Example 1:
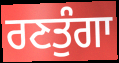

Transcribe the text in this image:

ਰਣਤੁੰਗਾ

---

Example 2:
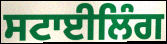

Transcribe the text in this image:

ਸਟਾਈਲਿੰਗ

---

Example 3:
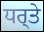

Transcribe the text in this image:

ਧਰ੍ਤੇ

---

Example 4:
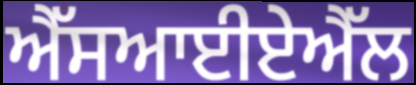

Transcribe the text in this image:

ਐੱਸਆਈਏਐੱਲ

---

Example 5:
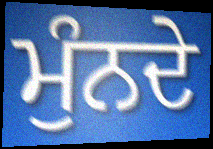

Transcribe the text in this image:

ਮੁੰਨਦੇ